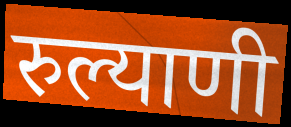
रुल्याणी